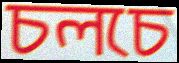
চলচে